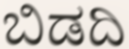
ಬಿಡದಿ